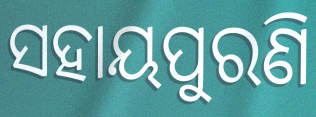
ସହାୟପୁରଣି